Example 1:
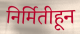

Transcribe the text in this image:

निर्मितीहून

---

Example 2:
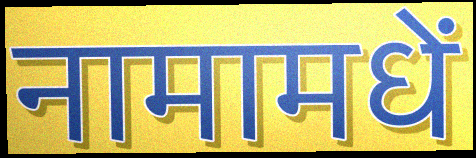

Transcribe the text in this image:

नामामधें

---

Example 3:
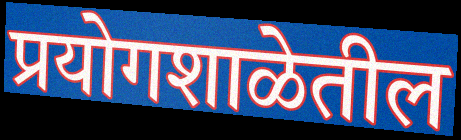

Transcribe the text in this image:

प्रयोगशाळेतील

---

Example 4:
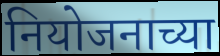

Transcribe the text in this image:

नियोजनाच्या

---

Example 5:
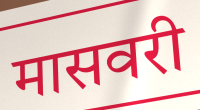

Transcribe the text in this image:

मासवरी